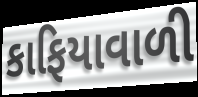
કાફિયાવાળી